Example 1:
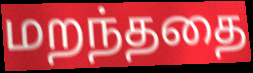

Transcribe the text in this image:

மறந்ததை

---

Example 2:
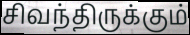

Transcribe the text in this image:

சிவந்திருக்கும்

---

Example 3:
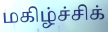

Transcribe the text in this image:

மகிழ்ச்சிக்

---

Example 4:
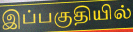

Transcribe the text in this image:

இப்பகுதியில்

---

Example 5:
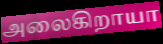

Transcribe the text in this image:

அலைகிறாயா